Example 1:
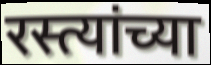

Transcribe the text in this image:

रस्त्यांच्या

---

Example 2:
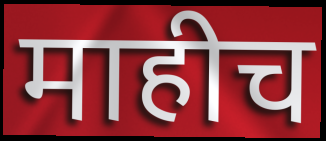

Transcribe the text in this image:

माहीच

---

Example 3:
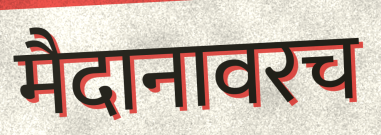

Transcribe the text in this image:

मैदानावरच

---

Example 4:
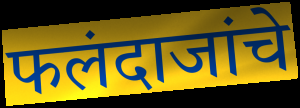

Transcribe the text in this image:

फलंदाजांचे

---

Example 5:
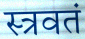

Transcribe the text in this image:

स्त्रवतं